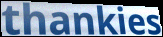
thankies